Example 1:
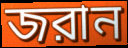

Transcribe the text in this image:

জরান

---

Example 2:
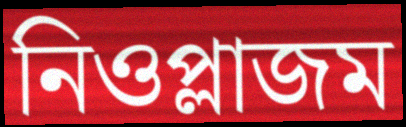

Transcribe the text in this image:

নিওপ্লাজম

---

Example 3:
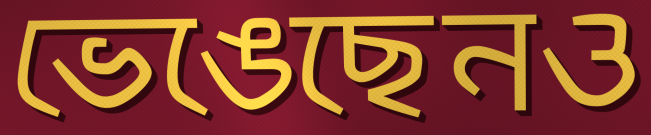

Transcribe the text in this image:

ভেঙেছেনও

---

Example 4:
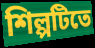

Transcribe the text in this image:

শিল্পটিতে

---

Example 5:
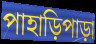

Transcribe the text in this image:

পাহাড়িপাড়া